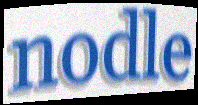
nodle